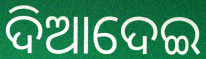
ଦିଆଦେଇ